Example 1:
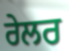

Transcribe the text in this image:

ਰੇਲਰ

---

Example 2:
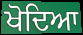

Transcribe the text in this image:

ਖੋਦਿਆ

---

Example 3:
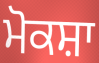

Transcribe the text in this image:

ਮੋਕਸ਼ਾ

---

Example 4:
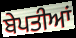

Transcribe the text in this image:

ਬੇਪਤੀਆਂ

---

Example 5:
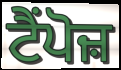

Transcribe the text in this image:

ਟੈਂਪੋਜ਼